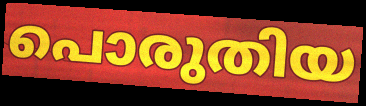
പൊരുതിയ